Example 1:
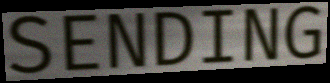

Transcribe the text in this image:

SENDING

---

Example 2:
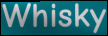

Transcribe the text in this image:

Whisky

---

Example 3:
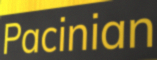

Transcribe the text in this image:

Pacinian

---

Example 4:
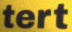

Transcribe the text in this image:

tert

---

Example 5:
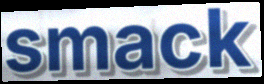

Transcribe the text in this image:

smack